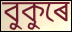
বুকুৰে